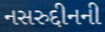
નસરુદ્દીનની